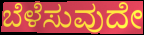
ಬೆಳೆಸುವುದೇ